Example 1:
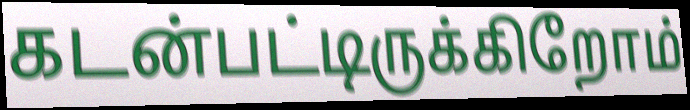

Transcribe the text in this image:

கடன்பட்டிருக்கிறோம்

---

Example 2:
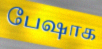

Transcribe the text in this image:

பேஷாக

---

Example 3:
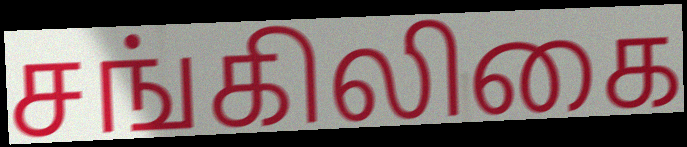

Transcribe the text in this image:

சங்கிலிகை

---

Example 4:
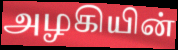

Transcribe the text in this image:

அழகியின்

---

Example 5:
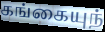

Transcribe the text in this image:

கங்கையுந்